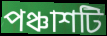
পঞ্চাশটি